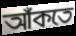
আঁকতে